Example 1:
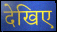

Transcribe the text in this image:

देखिए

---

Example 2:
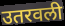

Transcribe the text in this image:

उतरवली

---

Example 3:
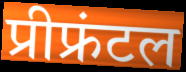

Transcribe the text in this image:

प्रीफ्रंटल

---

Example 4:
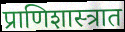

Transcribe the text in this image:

प्राणिशास्त्रात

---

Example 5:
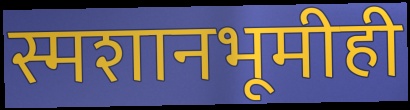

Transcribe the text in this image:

स्मशानभूमीही